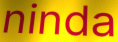
ninda